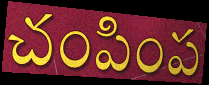
చంపింప